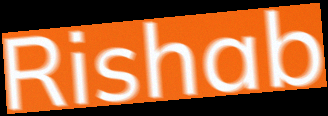
Rishab